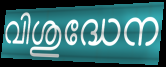
വിശുദ്ധേന